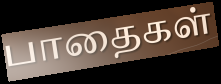
பாதைகள்